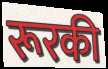
रूरकी